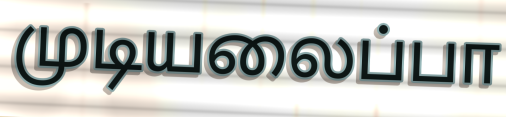
முடியலைப்பா